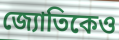
জ্যোতিকেও